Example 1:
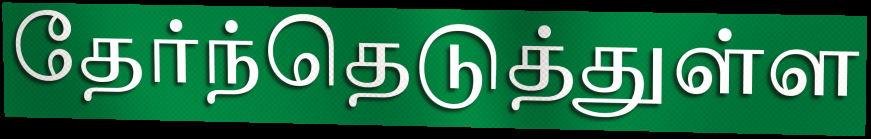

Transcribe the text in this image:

தேர்ந்தெடுத்துள்ள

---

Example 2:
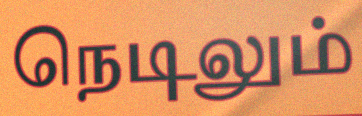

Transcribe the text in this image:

நெடிலும்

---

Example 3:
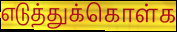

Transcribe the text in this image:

எடுத்துக்கொள்க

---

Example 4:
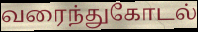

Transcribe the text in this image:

வரைந்துகோடல்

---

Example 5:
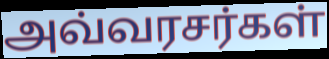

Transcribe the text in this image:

அவ்வரசர்கள்